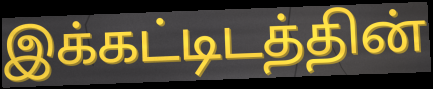
இக்கட்டிடத்தின்